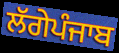
ਲੱਗੇਪੰਜਾਬ